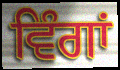
ਵਿੰਗਾਂ